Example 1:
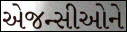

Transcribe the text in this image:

એજન્સીઓને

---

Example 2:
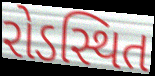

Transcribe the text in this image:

રોડસ્થિત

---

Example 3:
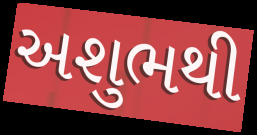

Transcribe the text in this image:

અશુભથી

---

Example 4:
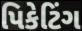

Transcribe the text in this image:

પિકેટિંગ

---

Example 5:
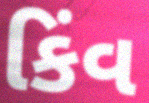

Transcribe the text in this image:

કિંવ